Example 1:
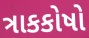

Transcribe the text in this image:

ત્રાકકોષો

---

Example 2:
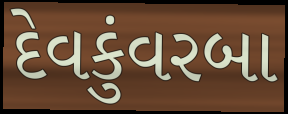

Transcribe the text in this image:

દેવકુંવરબા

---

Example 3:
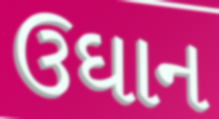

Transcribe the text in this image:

ઉઘાન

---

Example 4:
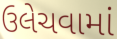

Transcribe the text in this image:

ઉલેચવામાં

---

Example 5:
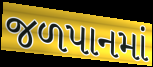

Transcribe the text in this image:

જળપાનમાં